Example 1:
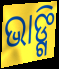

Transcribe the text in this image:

ଭାଙ୍ଗି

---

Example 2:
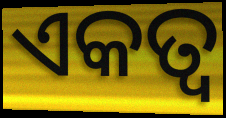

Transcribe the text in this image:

ଏକତ୍ୱ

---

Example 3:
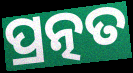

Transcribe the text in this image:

ପ୍ରତ୍ନତ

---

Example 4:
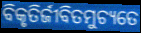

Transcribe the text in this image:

ବିକୃତିର୍ଜୀବିତମୁଚ୍ୟତେ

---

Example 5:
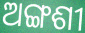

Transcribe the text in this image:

ଅଙ୍ଗଶୀ